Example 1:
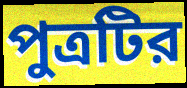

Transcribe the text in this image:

পুত্রটির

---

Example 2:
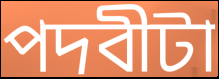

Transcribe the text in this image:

পদবীটা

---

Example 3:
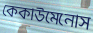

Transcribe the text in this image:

কেকাউমেনোস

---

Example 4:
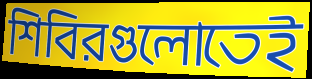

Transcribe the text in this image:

শিবিরগুলোতেই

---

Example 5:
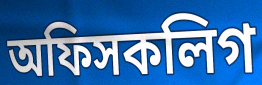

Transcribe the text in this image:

অফিসকলিগ